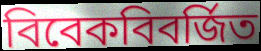
বিবেকবিবর্জিত